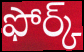
ఫోర్క్